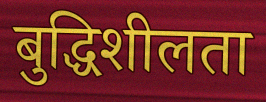
बुद्धिशीलता